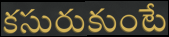
కసురుకుంటే